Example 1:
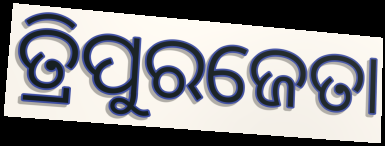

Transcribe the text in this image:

ତ୍ରିପୁରଜେତା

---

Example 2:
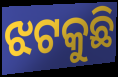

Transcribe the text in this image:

ଝଟକୁଛି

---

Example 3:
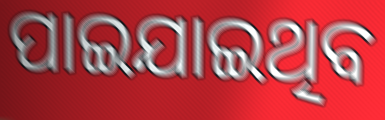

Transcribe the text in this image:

ପାଇଯାଇଥିବ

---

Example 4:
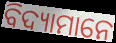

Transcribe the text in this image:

ବିଦ୍ୟାମାନେ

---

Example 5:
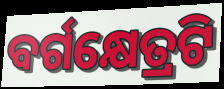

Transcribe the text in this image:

ବର୍ଗକ୍ଷେତ୍ରଟି